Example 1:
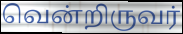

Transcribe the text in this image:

வென்றிருவர்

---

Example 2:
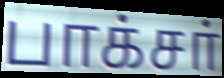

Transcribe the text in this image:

பாக்சர்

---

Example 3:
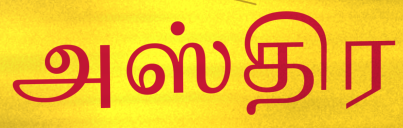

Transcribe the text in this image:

அஸ்திர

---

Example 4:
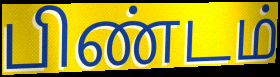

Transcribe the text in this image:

பிண்டம்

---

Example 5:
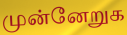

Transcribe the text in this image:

முன்னேறுக